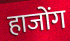
हाजोंग